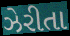
ઝેરીતા